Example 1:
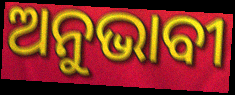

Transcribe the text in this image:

ଅନୁଭାବୀ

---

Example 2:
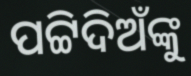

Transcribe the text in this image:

ପଟ୍ଟିଦିଅଁଙ୍କୁ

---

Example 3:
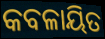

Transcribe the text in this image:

କବଳାୟିତ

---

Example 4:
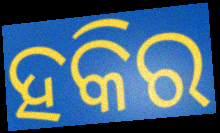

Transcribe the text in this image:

ହକିର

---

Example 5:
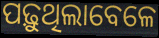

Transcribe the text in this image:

ପଢ଼ୁଥିଲାବେଳେ